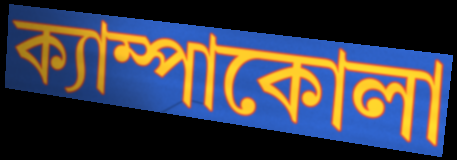
ক্যাম্পাকোলা